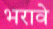
भरावे